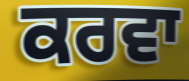
ਕਰਵਾ